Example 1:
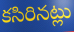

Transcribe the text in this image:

కసిరినట్లు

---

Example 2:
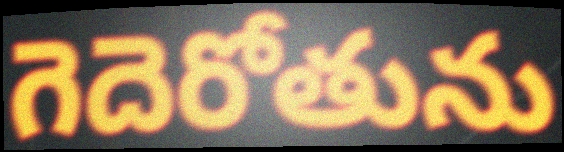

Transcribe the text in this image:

గెదెరోతును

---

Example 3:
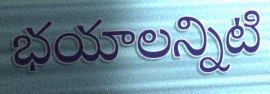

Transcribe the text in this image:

భయాలన్నిటి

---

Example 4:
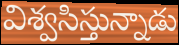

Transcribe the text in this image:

విశ్వసిస్తున్నాడు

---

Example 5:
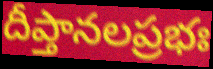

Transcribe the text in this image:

దీప్తానలప్రభః